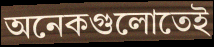
অনেকগুলোতেই